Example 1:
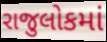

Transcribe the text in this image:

રાજુલોકમાં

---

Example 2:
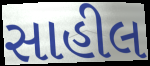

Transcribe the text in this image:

સાહીલ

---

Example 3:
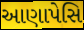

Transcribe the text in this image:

આણાપેસિ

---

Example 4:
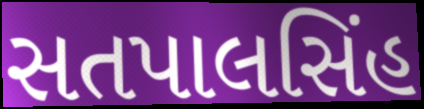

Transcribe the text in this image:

સતપાલસિંહ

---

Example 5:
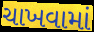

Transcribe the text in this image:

ચાખવામાં